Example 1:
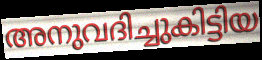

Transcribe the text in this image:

അനുവദിച്ചുകിട്ടിയ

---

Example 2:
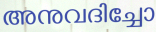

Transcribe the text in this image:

അനുവദിച്ചോ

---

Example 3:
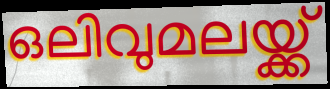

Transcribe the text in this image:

ഒലിവുമലയ്ക്ക്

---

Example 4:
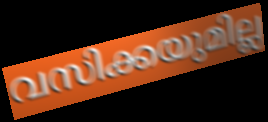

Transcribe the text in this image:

വസിക്കയുമില്ല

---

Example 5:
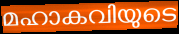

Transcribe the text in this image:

മഹാകവിയുടെ